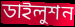
ডাইলুশন